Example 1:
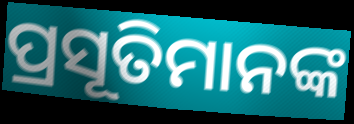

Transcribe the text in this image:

ପ୍ରସୂତିମାନଙ୍କ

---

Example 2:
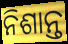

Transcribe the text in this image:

ନିଶାନ୍ତ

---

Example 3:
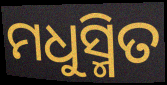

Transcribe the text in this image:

ମଧୁସ୍ମିତ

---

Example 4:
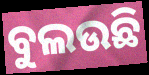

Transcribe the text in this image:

ବୁଲଉଛି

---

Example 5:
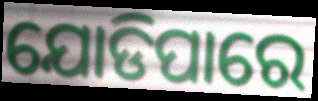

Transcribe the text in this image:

ଯୋଡିପାରେ